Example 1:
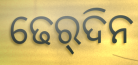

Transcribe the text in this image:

ଢେର୍‌ଦିନ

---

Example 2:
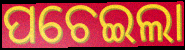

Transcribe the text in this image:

ପଚେଇଲା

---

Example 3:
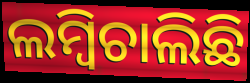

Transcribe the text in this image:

ଲମ୍ବିଚାଲିଛି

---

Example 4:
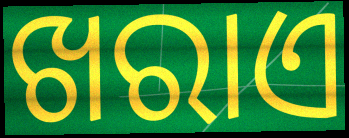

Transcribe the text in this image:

ଖରାଏ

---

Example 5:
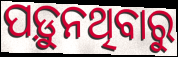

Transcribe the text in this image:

ପଡ଼ୁନଥିବାରୁ